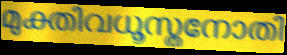
മുക്തിവധൂസ്തനോതി